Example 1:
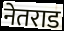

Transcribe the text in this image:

नेतराड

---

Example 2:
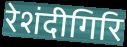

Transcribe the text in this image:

रेशंदीगिरि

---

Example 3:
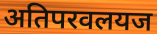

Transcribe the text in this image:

अतिपरवलयज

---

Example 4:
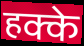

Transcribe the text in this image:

हक्के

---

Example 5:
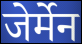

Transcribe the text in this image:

जेर्मेन